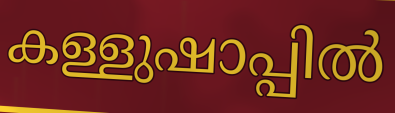
കള്ളുഷാപ്പിൽ